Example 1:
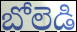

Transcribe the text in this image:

బోలెడి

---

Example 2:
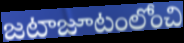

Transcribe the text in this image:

జటాజూటంలోంచి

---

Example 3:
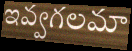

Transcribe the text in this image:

ఇవ్వగలమా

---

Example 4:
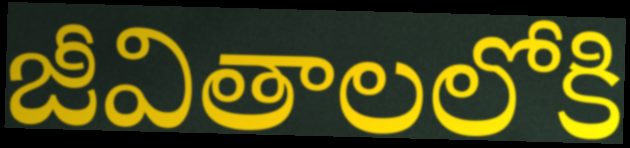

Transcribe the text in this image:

జీవితాలలోకి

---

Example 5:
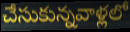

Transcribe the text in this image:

చేసుకున్నవాళ్లలో